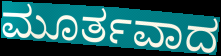
ಮೂರ್ತವಾದ